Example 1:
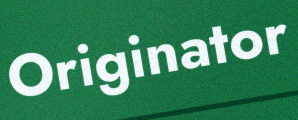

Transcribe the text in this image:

Originator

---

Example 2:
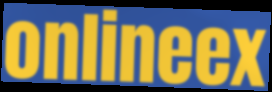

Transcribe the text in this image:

onlineex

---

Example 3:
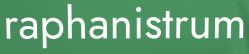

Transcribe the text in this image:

raphanistrum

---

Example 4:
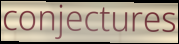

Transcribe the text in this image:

conjectures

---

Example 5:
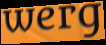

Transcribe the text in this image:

werg